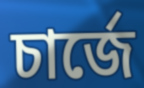
চার্জে